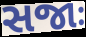
સજાઃ